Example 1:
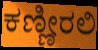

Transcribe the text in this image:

ಕಣ್ಣೀರಲಿ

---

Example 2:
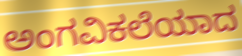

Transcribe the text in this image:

ಅಂಗವಿಕಲೆಯಾದ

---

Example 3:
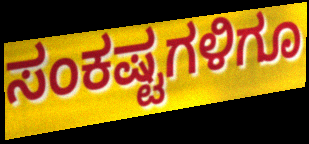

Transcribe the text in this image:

ಸಂಕಷ್ಟಗಳಿಗೂ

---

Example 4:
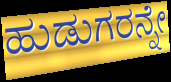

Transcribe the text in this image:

ಹುಡುಗರನ್ನೇ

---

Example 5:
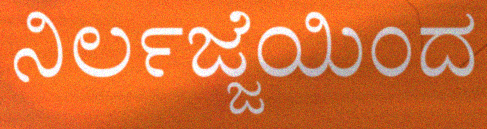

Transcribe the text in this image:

ನಿರ್ಲಜ್ಜೆಯಿಂದ